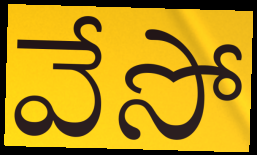
వేసో